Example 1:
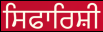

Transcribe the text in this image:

ਸਿਫਾਰਿਸ਼ੀ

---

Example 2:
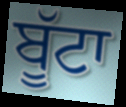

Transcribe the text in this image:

ਬੂੱਟਾ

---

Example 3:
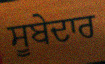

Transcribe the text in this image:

ਸੂਬੇਦਾਰ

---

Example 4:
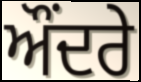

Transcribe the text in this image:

ਔਂਦਰੇ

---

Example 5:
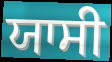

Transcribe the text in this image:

ਯਾਸੀ